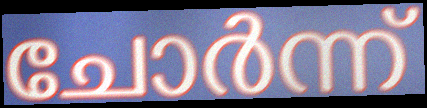
ചോർന്ന്